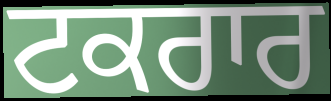
ਟਕਰਾਰ